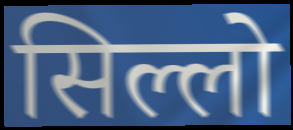
सिल्लो